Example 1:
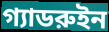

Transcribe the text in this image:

গ্যাডরুইন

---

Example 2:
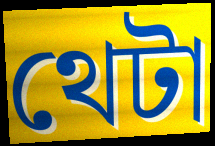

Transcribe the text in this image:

থেটা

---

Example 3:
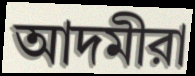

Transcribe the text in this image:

আদমীরা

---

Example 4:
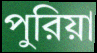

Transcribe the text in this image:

পুরিয়া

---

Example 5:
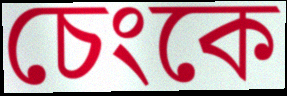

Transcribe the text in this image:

চেংকে